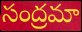
సంద్రమా